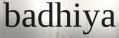
badhiya